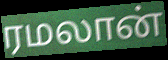
ரமலான்